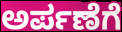
ಅರ್ಪಣೆಗೆ